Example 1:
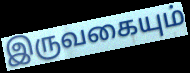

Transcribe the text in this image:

இருவகையும்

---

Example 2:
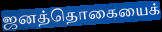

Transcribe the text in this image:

ஜனத்தொகையைக்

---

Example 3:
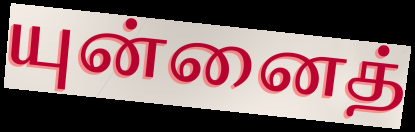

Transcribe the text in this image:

யுன்னைத்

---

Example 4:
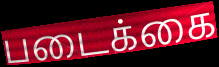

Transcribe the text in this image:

படைக்கை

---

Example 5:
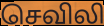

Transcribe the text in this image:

செவிலி